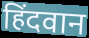
हिंदवान